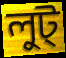
লুট্